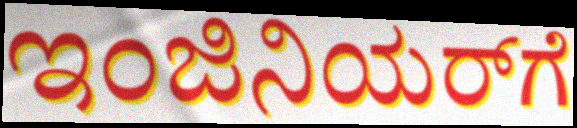
ಇಂಜಿನಿಯರ್‌ಗೆ